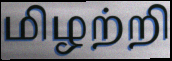
மிழற்றி